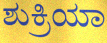
ಶುಕ್ರಿಯಾ